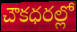
చౌకధరల్లో